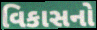
વિકાસનો